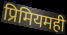
प्रिमियमही